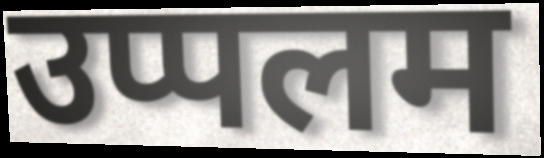
उप्पलम